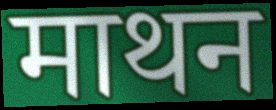
माथन